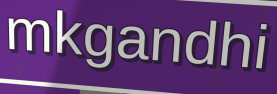
mkgandhi